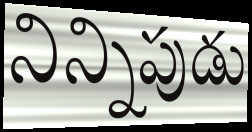
నిన్నిపుడు